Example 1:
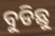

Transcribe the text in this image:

ବୁଡିଛୁ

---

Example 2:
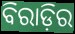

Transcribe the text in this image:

ବିରାଡ଼ିର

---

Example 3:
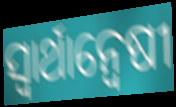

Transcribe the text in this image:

ସ୍ବାର୍ଥାନ୍ବେଷୀ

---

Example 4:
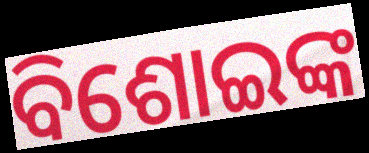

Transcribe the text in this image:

ବିଶୋଇଙ୍କ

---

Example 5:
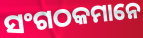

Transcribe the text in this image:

ସଂଗଠକମାନେ